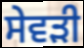
ਸੇਵੜੀ